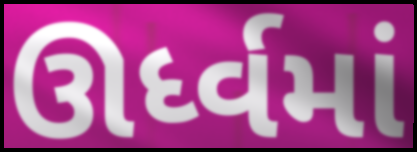
ઊર્ધ્વમાં